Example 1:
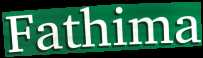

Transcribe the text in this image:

Fathima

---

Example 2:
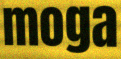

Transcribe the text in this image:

moga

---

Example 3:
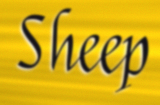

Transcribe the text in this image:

Sheep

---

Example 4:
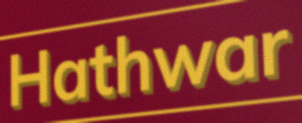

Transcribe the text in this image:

Hathwar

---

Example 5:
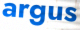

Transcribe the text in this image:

argus